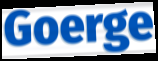
Goerge